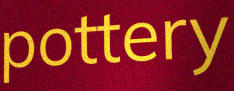
pottery